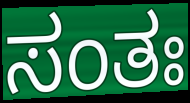
ಸಂತಃ